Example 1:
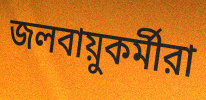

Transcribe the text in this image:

জলবায়ুকর্মীরা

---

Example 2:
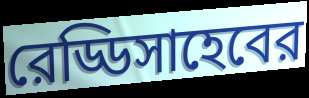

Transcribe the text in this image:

রেড্ডিসাহেবের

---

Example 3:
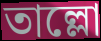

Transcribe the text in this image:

তাল্লো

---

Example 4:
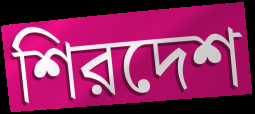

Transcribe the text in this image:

শিরদেশ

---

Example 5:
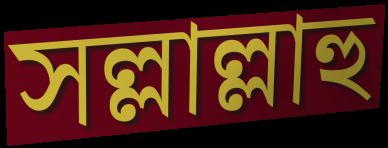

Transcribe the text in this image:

সল্লাল্লাহু